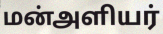
மன்அளியர்